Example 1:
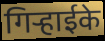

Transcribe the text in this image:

गिर्‍हाईके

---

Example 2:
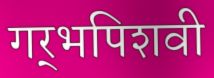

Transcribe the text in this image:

गर्भपिशवी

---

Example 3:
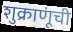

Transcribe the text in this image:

शुक्राणूंची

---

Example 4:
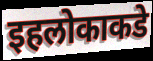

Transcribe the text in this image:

इहलोकाकडे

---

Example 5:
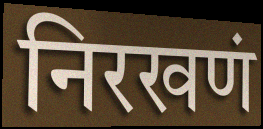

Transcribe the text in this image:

निरखणं